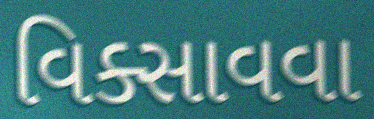
વિક્સાવવા